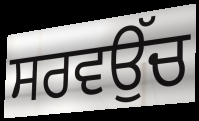
ਸਰਵਉੱਚ